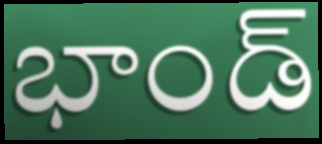
భాండ్